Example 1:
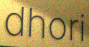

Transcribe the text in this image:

dhori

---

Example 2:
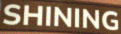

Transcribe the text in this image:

SHINING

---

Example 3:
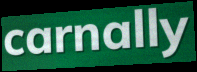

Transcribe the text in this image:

carnally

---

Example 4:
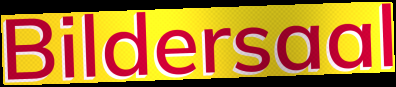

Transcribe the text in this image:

Bildersaal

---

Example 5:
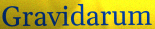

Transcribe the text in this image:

Gravidarum